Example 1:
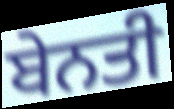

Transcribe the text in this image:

ਬੇਨਤੀ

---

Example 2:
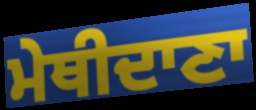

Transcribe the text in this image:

ਮੇਥੀਦਾਣਾ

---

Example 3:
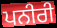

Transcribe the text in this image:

ਪਨੀਰੀ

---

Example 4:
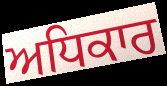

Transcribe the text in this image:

ਅਧਿਕਾਰ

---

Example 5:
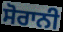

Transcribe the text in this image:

ਸੋਰਾਨੀ